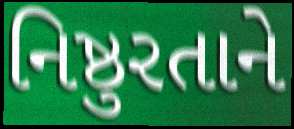
નિષ્ઠુરતાને